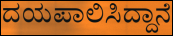
ದಯಪಾಲಿಸಿದ್ದಾನೆ